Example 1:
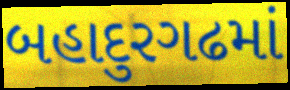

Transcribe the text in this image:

બહાદુરગઢમાં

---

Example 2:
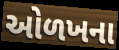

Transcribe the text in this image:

ઓળખના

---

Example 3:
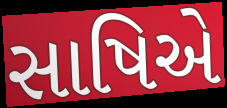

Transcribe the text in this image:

સાષિએ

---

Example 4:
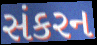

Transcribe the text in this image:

સંકરન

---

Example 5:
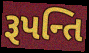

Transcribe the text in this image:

રૂપન્તિ